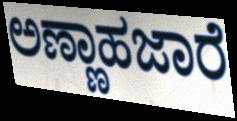
ಅಣ್ಣಾಹಜಾರೆ